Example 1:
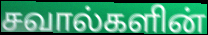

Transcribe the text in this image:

சவால்களின்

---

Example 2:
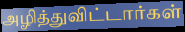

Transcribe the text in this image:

அழித்துவிட்டார்கள்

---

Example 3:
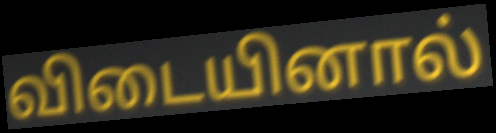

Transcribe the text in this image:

விடையினால்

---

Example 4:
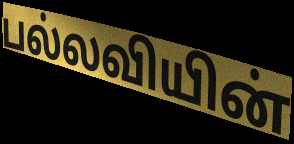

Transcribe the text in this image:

பல்லவியின்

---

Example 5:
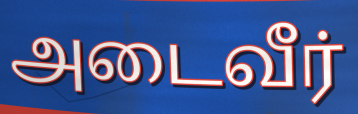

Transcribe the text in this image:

அடைவீர்